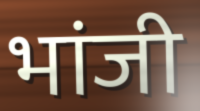
भांजी